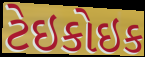
ટેઇકોઇક